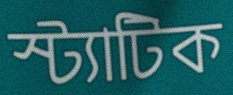
স্ট্যাটিক